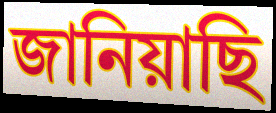
জানিয়াছি